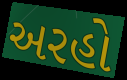
અરહો